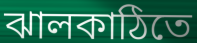
ঝালকাঠিতে